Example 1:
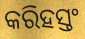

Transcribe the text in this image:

କରିହସ୍ତଂ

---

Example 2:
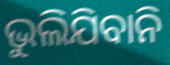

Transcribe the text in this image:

ଭୁଲିଯିବାନି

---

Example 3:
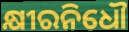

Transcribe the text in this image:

କ୍ଷୀରନିଧୌ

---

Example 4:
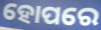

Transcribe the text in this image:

ହୋପରେ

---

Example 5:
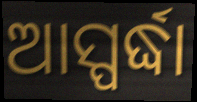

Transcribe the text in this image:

ଆସ୍ପର୍ଦ୍ଧା